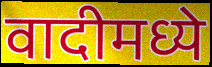
वादीमध्ये